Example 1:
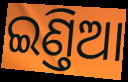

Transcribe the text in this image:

ଇଣ୍ତିଆ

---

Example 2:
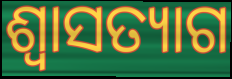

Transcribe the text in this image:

ଶ୍ବାସତ୍ୟାଗ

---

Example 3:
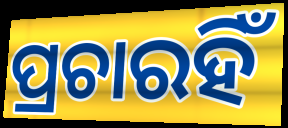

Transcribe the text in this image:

ପ୍ରଚାରହିଁ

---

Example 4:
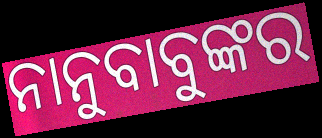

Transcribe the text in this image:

ନାନୁବାବୁଙ୍କର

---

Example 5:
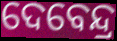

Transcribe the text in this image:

ଦେବେନ୍ଦ୍ର